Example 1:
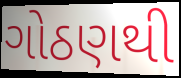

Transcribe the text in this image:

ગોઠણથી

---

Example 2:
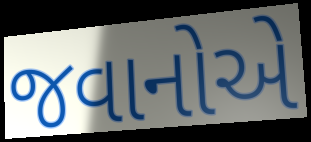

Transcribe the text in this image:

જવાનોએ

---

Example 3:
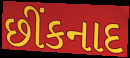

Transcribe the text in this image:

છીંકનાદ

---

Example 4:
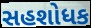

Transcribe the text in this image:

સહશોધક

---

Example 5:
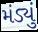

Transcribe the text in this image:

મંડ્યું